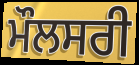
ਮੌਲਸਰੀ